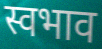
स्वभाव